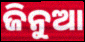
ଜିନୁଆ